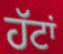
ਹੱਟਾਂ